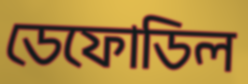
ডেফোডিল